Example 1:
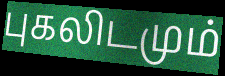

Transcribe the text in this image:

புகலிடமும்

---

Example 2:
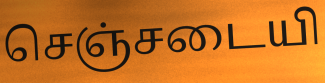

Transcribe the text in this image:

செஞ்சடையி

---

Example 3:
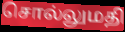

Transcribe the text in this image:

சொல்லுமதி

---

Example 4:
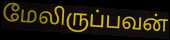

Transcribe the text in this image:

மேலிருப்பவன்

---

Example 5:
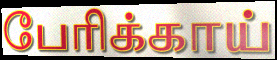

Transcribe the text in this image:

பேரிக்காய்